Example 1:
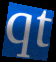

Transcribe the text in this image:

qt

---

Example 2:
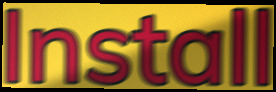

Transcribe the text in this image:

Install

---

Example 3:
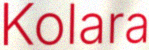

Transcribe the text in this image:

Kolara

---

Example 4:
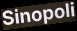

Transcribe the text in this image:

Sinopoli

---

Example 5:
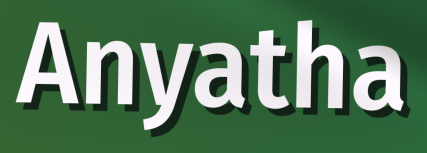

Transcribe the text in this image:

Anyatha